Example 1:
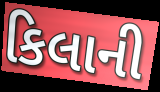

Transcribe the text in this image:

કિલાની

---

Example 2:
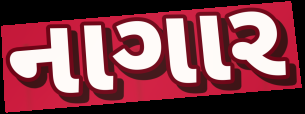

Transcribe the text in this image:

નાગાર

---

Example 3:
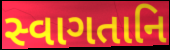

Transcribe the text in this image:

સ્વાગતાનિ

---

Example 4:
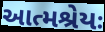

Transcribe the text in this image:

આત્મશ્રેયઃ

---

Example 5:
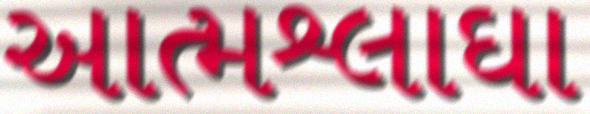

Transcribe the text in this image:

આત્મશ્લાઘા